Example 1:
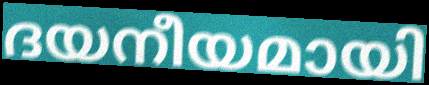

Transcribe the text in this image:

ദയനീയമായി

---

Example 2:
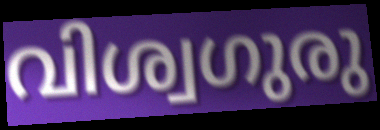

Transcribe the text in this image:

വിശ്വഗുരു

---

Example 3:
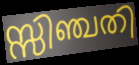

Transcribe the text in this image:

സ്സിഞ്ചതി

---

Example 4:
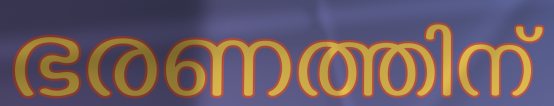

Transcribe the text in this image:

ഭരണത്തിന്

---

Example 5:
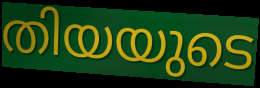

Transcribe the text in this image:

തിയയുടെ